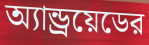
অ্যান্ড্রয়েডের